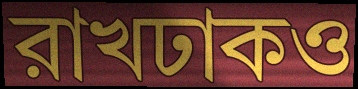
রাখঢাকও